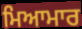
ਮਿਆਮਾਰ